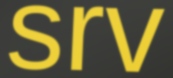
srv